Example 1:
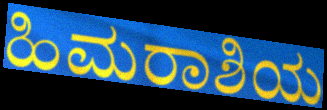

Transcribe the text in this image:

ಹಿಮರಾಶಿಯ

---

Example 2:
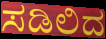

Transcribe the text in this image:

ಸಡಿಲಿದ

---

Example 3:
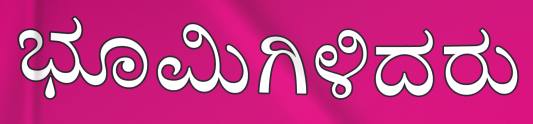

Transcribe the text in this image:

ಭೂಮಿಗಿಳಿದರು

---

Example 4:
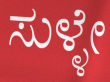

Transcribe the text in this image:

ಸುಳ್ಳೇ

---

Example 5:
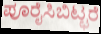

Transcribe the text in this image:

ಪೂರೈಸಿಬಿಟ್ಟರೆ